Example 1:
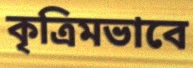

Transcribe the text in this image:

কৃত্রিমভাবে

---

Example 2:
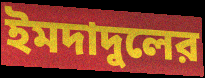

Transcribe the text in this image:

ইমদাদুলের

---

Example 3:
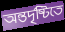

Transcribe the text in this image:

অন্তর্দৃষ্টিতে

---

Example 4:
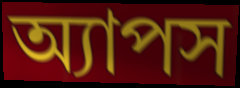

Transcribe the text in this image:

অ্যাপস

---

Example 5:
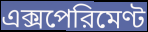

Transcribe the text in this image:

এক্সপেরিমেণ্ট